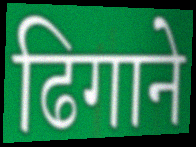
ढिगाने